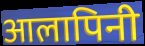
आलापिनी